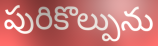
పురికొల్పును